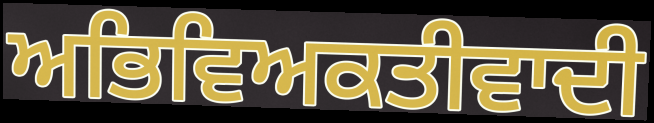
ਅਭਿਵਿਅਕਤੀਵਾਦੀ